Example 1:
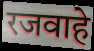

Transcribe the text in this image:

रजवाहे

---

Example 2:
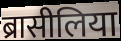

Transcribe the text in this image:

ब्रासीलिया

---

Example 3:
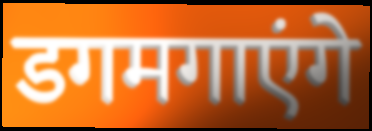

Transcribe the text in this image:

डगमगाएंगे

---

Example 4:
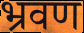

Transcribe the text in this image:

भ्रवण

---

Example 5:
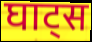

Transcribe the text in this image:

घाट्स